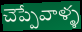
చెప్పేవాళ్ళ